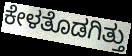
ಕೇಳತೊಡಗಿತ್ತು